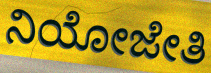
ನಿಯೋಜೇತಿ